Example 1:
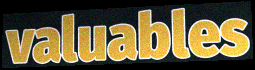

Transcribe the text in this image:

valuables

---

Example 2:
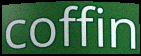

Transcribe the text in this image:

coffin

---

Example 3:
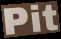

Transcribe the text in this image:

Pit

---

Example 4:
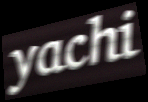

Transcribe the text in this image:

yachi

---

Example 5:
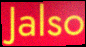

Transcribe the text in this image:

Jalso